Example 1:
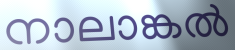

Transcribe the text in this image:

നാലാങ്കൽ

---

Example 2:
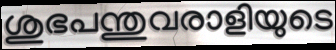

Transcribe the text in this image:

ശുഭപന്തുവരാളിയുടെ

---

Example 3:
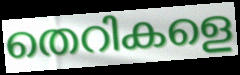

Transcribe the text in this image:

തെറികളെ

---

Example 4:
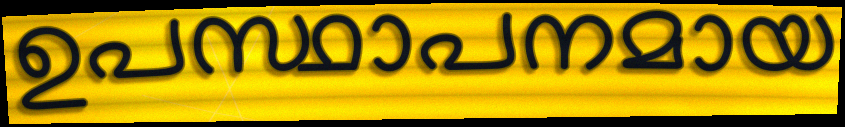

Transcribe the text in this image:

ഉപസ്ഥാപനമായ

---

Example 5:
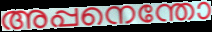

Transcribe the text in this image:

അപ്പനെന്തോ